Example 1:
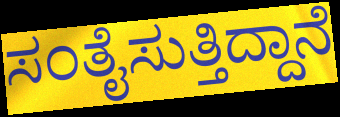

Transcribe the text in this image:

ಸಂತೈಸುತ್ತಿದ್ದಾನೆ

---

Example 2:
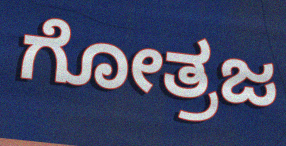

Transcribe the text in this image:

ಗೋತ್ರಜ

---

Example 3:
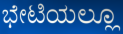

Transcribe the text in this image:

ಭೇಟಿಯಲ್ಲೂ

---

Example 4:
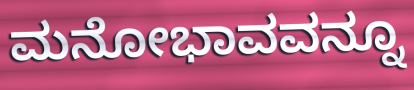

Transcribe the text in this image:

ಮನೋಭಾವವನ್ನೂ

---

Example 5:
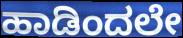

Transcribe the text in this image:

ಹಾಡಿಂದಲೇ